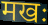
मखः